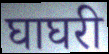
घाघरी